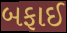
બફાઈ